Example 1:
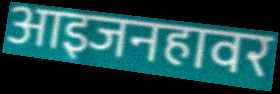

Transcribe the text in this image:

आइजनहावर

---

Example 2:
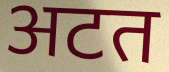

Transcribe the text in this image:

अटत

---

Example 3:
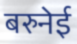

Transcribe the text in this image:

बरुनेई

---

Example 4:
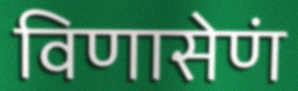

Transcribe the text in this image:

विणासेणं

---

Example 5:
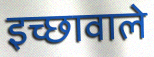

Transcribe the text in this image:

इच्छावाले